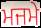
ਮਜਮੇ